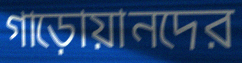
গাড়োয়ানদের